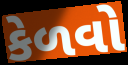
કેળવો